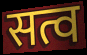
सत्व